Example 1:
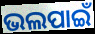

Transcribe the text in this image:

ଭଲପାଇଁ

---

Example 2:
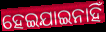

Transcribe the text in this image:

ହେଇଯାଇନାହିଁ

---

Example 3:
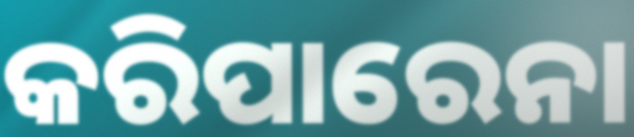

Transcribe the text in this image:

କରିପାରେନା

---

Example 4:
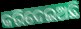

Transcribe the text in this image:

କରିଦେଇଅଛି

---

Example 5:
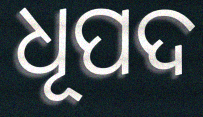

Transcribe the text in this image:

ଧୂପଦ